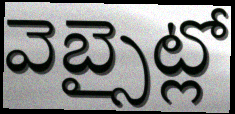
వెబ్సైట్లో